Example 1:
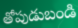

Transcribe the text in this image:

తోపుడుబండి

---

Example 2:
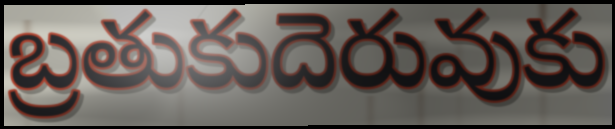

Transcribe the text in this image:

బ్రతుకుదెరువుకు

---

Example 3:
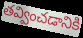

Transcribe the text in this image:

తవ్వించడానికి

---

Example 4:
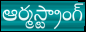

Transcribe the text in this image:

ఆర్మస్ట్రాంగ్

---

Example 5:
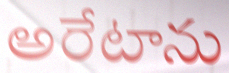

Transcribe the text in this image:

అరేటాను